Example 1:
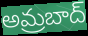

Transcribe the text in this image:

అమ్రబాద్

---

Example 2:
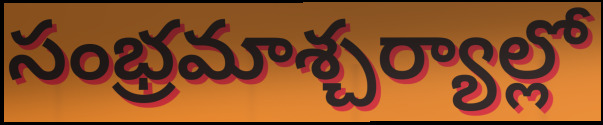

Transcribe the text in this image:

సంభ్రమాశ్చర్యాల్లో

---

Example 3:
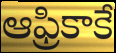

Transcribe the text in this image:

ఆఫ్రికాకే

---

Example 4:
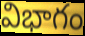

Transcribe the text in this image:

విభాగం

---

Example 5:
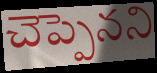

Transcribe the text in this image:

చెప్పెనని